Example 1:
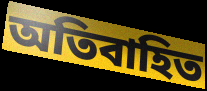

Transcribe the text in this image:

অতিবাহিত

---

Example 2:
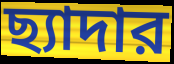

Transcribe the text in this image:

ছ্যাদার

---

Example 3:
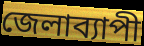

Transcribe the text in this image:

জেলাব্যাপী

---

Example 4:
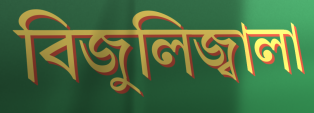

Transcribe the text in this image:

বিজুলিজ্বালা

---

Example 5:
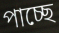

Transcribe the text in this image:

পাচ্ছে